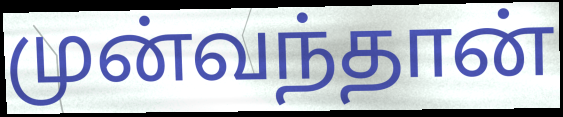
முன்வந்தான்